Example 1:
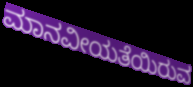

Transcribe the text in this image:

ಮಾನವೀಯತೆಯಿರುವ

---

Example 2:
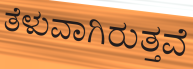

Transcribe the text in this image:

ತೆಳುವಾಗಿರುತ್ತವೆ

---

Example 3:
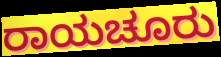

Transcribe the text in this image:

ರಾಯಚೂರು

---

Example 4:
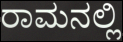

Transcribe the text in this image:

ರಾಮನಲ್ಲಿ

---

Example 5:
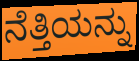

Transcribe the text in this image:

ನೆತ್ತಿಯನ್ನು